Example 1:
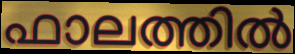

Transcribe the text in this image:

ഫാലത്തിൽ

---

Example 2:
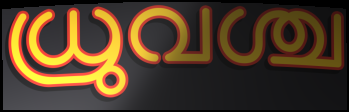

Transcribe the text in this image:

ധ്രുവശ്ച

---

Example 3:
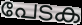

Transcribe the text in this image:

പേടക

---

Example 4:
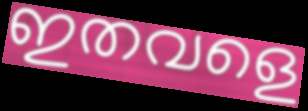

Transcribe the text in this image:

ഇതവളെ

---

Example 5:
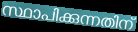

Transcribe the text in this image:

സ്ഥാപിക്കുന്നതിന്